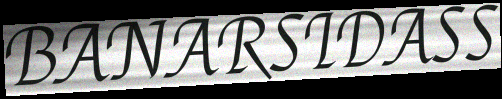
BANARSIDASS